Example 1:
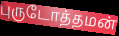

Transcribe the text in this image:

புருடோத்தமன்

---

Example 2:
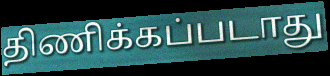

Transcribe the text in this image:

திணிக்கப்படாது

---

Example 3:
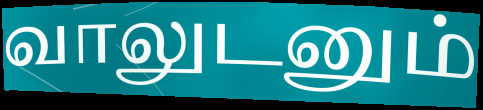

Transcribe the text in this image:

வாலுடனும்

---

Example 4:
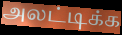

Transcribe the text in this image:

அலட்டிக்க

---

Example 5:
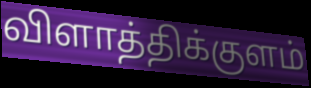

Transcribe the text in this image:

விளாத்திக்குளம்